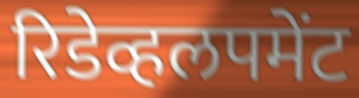
रिडेव्हलपमेंट